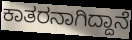
ಕಾತರನಾಗಿದ್ದಾನೆ